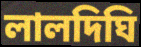
লালদিঘি